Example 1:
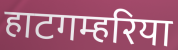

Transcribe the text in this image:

हाटगम्हरिया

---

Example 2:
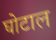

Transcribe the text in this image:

घोटाल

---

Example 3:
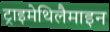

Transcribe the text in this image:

ट्राइमेथिलैमाइन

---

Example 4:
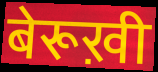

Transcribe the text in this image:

बेरूख़ी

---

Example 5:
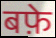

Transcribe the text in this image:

बफ़े